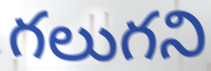
గలుగని